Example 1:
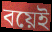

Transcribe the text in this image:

বয়েই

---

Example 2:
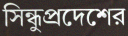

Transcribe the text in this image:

সিন্ধুপ্রদেশের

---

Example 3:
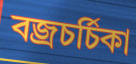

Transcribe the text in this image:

বজ্রচর্চিকা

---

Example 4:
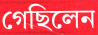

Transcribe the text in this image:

গেছিলেন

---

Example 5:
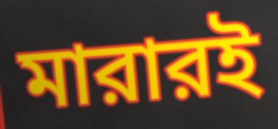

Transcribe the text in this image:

মারারই